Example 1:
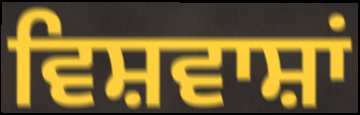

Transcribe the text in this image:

ਵਿਸ਼ਵਾਸ਼ਾਂ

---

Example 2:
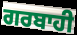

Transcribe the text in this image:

ਗਰਬਾਹੀ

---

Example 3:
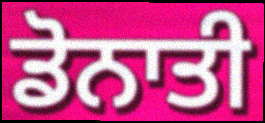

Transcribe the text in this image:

ਡੋਨਾਤੀ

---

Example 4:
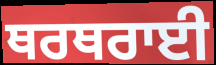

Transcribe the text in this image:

ਥਰਥਰਾਈ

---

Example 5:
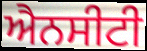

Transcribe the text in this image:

ਐਨਸੀਟੀ